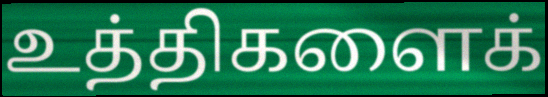
உத்திகளைக்